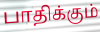
பாதிக்கும்